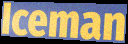
Iceman